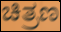
ಚಿತ್ರಣ